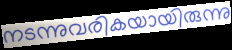
നടന്നുവരികയായിരുന്നു